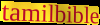
tamilbible